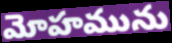
మోహమును